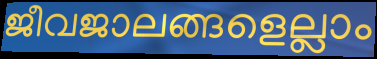
ജീവജാലങ്ങളെല്ലാം